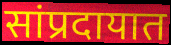
सांप्रदायात